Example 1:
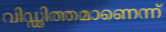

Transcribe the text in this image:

വിഡ്ഢിത്തമാണെന്ന്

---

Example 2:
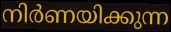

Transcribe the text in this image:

നിർണയിക്കുന്ന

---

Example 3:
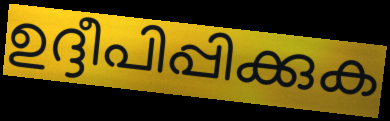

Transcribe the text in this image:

ഉദ്ദീപിപ്പിക്കുക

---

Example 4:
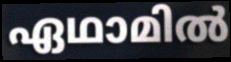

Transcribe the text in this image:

ഏഥാമിൽ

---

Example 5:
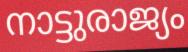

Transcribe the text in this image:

നാട്ടുരാജ്യം